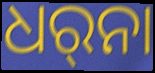
ଧର୍‌ନା